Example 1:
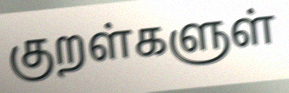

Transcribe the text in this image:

குறள்களுள்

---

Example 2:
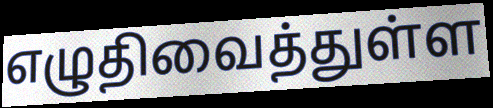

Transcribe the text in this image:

எழுதிவைத்துள்ள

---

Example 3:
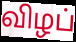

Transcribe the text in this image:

விழப்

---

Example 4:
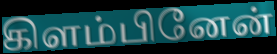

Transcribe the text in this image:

கிளம்பினேன்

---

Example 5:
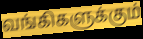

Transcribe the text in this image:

வங்கிகளுக்கும்